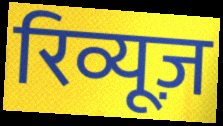
रिव्यूज़